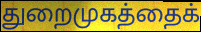
துறைமுகத்தைக்